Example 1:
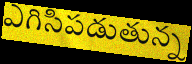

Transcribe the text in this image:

ఎగిసిపడుతున్న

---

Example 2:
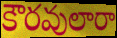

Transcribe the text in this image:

కౌరవులారా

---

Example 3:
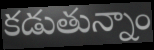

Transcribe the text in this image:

కడుతున్నాం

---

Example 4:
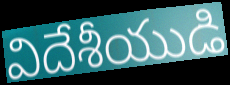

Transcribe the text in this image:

విదేశీయుడి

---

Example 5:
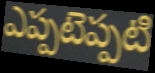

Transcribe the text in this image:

ఎప్పటెప్పటి